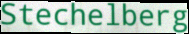
Stechelberg